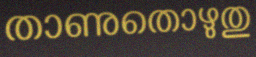
താണുതൊഴുതു